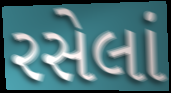
રસેલાં